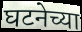
घटनेच्या